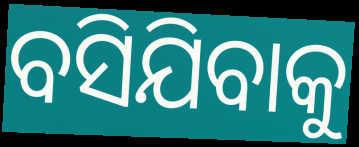
ବସିଯିବାକୁ